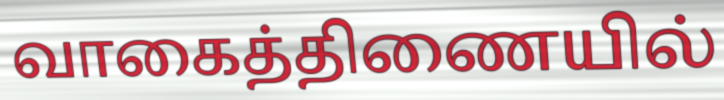
வாகைத்திணையில்